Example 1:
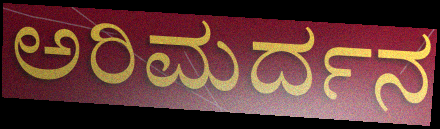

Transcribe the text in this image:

ಅರಿಮರ್ದನ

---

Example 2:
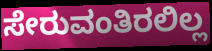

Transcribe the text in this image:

ಸೇರುವಂತಿರಲಿಲ್ಲ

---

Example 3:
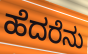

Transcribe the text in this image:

ಹೆದರೆನು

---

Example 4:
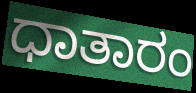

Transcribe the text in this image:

ಧಾತಾರಂ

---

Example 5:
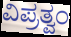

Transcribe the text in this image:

ವಿಪ್ರತ್ವಂ